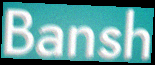
Bansh